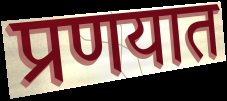
प्रणयात